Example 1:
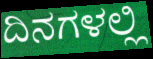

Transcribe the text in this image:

ದಿನಗಳಲ್ಲಿ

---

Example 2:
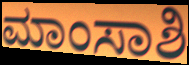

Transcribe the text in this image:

ಮಾಂಸಾಶಿ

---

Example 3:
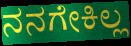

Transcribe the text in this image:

ನನಗೇಕಿಲ್ಲ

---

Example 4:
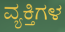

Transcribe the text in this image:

ವ್ಯಕ್ತಿಗಳ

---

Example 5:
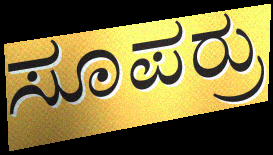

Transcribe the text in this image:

ಸೂಪರ್ರು